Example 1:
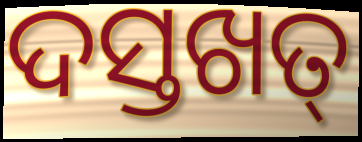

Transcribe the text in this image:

ଦସ୍ତଖତ୍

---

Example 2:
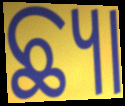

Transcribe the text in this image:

ଛ୍ୟା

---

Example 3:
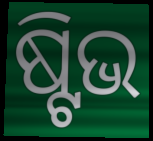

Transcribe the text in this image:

ଷ୍ଟିଭ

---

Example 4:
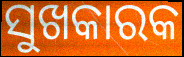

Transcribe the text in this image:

ସୁଖକାରକ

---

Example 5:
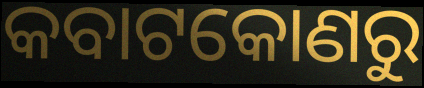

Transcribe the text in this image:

କବାଟକୋଣରୁ